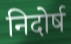
निदोर्ष